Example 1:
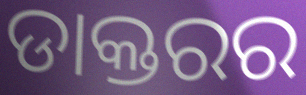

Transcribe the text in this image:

ଡାକ୍ତରର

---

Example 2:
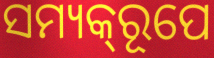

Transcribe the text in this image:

ସମ୍ୟକ୍‌ରୂପେ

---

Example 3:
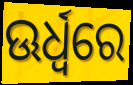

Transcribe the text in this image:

ଊର୍ଧ୍ୱରେ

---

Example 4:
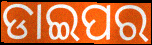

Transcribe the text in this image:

ଡାଇପର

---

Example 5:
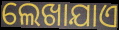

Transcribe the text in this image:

ଲେଖାଯାଏ